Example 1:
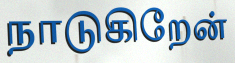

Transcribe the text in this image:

நாடுகிறேன்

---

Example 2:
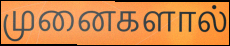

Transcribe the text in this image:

முனைகளால்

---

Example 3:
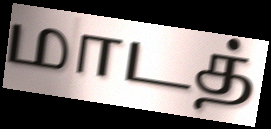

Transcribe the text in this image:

மாடத்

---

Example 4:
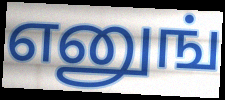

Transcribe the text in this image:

எனுங்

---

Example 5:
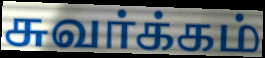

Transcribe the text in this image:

சுவர்க்கம்